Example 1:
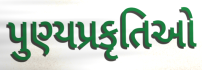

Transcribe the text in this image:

પુણ્યપ્રકૃતિઓ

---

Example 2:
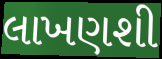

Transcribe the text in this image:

લાખણશી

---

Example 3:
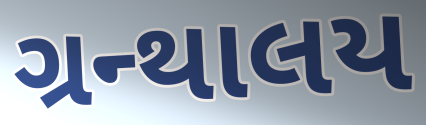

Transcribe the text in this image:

ગ્રન્થાલય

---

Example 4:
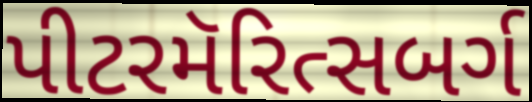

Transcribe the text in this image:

પીટરમૅરિત્સબર્ગ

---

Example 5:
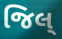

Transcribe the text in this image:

જિલ્